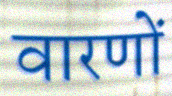
वारणों